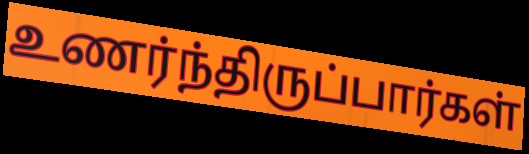
உணர்ந்திருப்பார்கள்